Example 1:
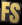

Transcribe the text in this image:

FS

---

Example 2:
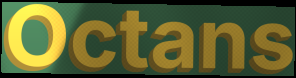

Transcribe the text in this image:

Octans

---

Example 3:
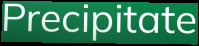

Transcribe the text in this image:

Precipitate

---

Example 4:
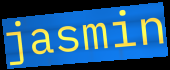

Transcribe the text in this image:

jasmin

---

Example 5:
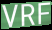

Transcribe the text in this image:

VRF